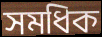
সমধিক